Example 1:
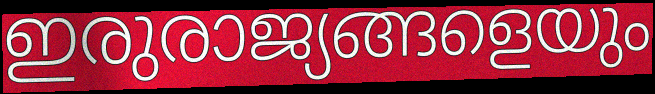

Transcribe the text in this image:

ഇരുരാജ്യങ്ങളെയും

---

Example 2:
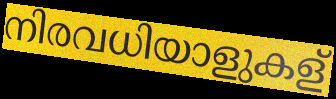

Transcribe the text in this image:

നിരവധിയാളുകള്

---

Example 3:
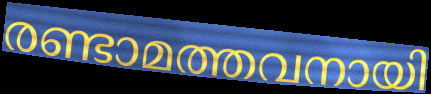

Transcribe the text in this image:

രണ്ടാമത്തവനായി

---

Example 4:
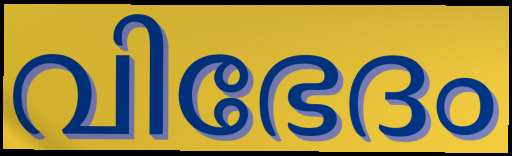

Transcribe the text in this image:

വിഭേദം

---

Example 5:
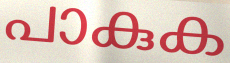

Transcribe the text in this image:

പാകുക